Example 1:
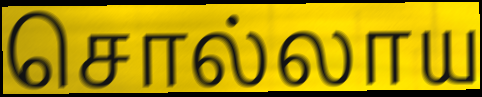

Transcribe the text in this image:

சொல்லாய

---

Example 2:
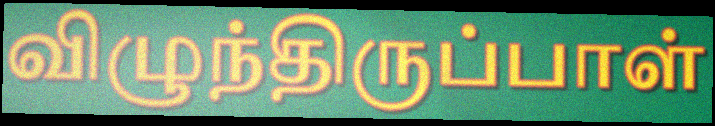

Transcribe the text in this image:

விழுந்திருப்பாள்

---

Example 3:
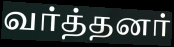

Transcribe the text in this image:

வர்த்தனர்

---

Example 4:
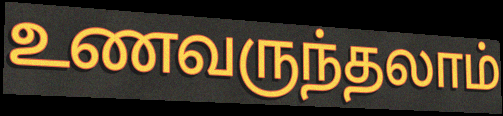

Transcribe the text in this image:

உணவருந்தலாம்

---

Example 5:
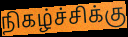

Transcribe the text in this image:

நிகழ்ச்சிக்கு